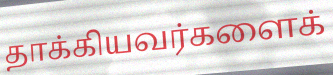
தாக்கியவர்களைக்